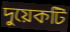
দুয়েকটি